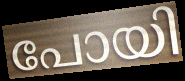
പോയി